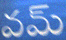
వమ్